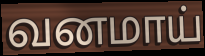
வனமாய்